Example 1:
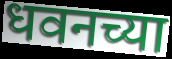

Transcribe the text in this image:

धवनच्या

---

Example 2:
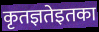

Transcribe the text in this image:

कृतज्ञतेइतका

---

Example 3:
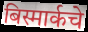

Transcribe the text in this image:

बिस्मार्कचे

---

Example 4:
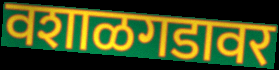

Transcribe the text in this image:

वशाळगडावर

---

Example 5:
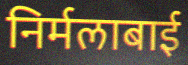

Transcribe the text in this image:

निर्मलाबाई